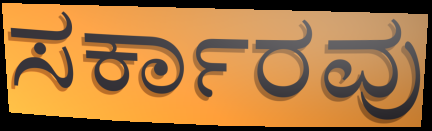
ಸರ್ಕಾರವು